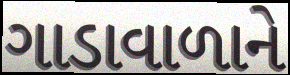
ગાડાવાળાને